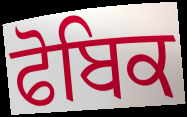
ਫੋਬਿਕ